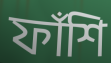
ফাঁশি